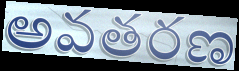
అవతరణ